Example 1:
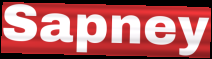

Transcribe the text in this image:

Sapney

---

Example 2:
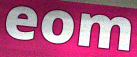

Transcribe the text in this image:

eom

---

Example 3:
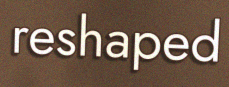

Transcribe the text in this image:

reshaped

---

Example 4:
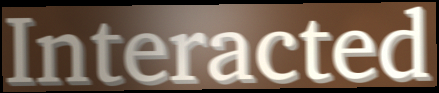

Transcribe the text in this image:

Interacted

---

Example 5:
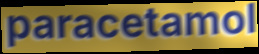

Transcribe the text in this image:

paracetamol